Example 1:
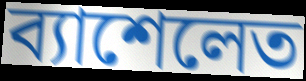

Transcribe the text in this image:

ব্যাশেলেত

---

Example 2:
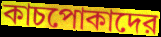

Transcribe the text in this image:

কাচপোকাদের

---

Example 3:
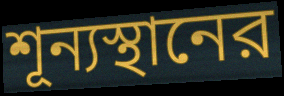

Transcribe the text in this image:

শূন্যস্থানের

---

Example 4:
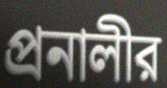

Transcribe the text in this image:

প্রনালীর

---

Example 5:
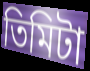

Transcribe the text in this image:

তিমিটা